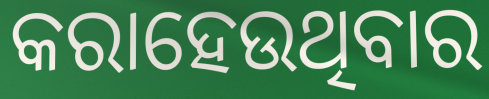
କରାହେଉଥିବାର